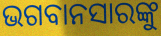
ଭଗବାନସାରଙ୍କୁ